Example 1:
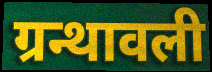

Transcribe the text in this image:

ग्रन्थावली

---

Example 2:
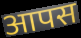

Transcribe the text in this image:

आपस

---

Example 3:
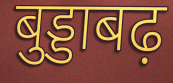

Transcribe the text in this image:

बुड्डाबढ़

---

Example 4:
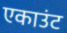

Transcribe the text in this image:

एकाउंट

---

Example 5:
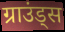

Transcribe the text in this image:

ग्राउंड्स